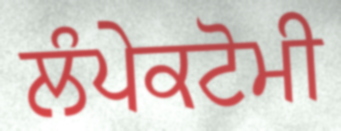
ਲੰਪੇਕਟੋਮੀ